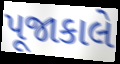
પૂજાકાલે